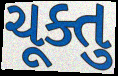
ચૂક્તુ